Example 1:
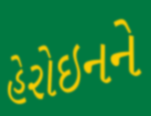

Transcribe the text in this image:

હેરોઇનને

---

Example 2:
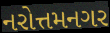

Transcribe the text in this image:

નરોત્તમનગર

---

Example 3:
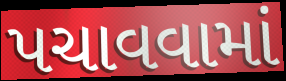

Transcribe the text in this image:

પચાવવામાં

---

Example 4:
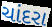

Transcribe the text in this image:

ચાંદરા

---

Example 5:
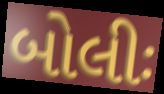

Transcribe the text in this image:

બોલીઃ